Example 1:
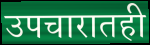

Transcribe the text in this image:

उपचारातही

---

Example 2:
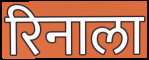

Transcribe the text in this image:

रिनाला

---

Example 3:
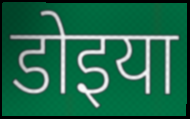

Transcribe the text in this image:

डोइया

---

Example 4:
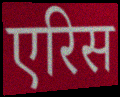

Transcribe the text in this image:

एरिस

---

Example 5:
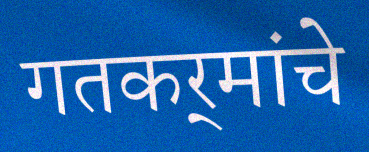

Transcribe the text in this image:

गतकर्मांचे